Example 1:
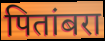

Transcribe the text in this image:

पितांबरा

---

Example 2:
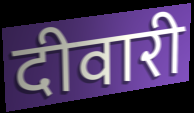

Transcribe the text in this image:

दीवारी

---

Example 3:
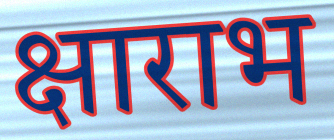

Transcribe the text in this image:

क्षाराभ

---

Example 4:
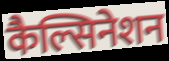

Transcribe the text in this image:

कैल्सिनेशन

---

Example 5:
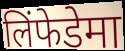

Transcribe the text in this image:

लिंफेडेमा